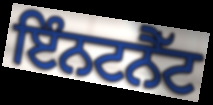
ਇੰਨਟਨੈੱਟ